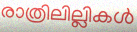
രാത്രിലില്ലികൾ